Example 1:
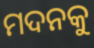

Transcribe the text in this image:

ମଦନକୁ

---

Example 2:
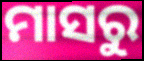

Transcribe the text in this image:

ମାସରୁ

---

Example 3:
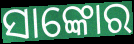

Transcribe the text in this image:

ସାଙ୍କୋର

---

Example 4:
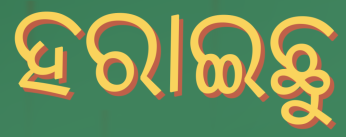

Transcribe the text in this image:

ହରାଇଛୁ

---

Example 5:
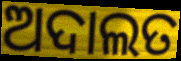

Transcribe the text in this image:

ଅଦାଲତ